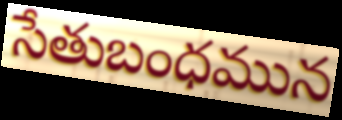
సేతుబంధమున